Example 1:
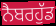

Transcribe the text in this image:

ਨੈਬਰਹੁੱਡ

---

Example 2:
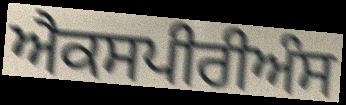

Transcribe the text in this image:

ਐਕਸਪੀਰੀਅੰਸ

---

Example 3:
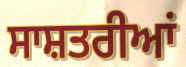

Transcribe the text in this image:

ਸਾਸ਼ਤਰੀਆਂ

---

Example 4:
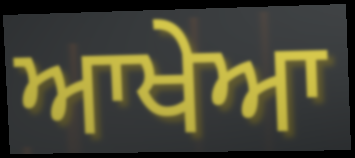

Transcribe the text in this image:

ਆਖੇਆ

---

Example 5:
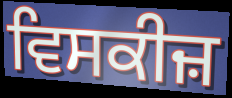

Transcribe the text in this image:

ਵਿਸਕੀਜ਼